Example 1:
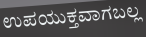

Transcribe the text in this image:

ಉಪಯುಕ್ತವಾಗಬಲ್ಲ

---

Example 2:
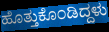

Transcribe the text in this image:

ಹೊತ್ತುಕೊಂಡಿದ್ದಳು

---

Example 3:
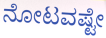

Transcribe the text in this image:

ನೋಟವಷ್ಟೇ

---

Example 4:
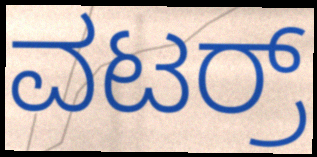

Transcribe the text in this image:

ವಟರ್ರ್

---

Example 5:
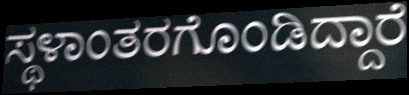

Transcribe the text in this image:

ಸ್ಥಳಾಂತರಗೊಂಡಿದ್ದಾರೆ